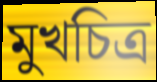
মুখচিত্র